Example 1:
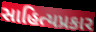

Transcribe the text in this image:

સાહિત્યપ્રકાર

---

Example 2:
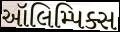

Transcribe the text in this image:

ઑલિમ્પિક્સ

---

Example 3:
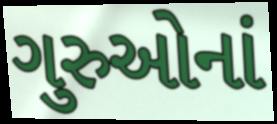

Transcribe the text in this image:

ગુરુઓનાં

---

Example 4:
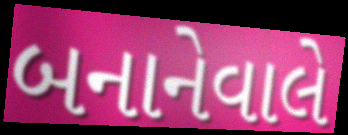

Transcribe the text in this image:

બનાનેવાલે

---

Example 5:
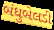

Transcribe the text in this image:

બંધુબેલડી